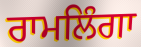
ਰਾਮਲਿੰਗਾ